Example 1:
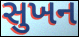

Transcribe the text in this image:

સુખન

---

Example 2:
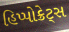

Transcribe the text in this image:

હિપ્પોક્રેટ્સ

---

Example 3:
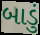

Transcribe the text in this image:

બાડું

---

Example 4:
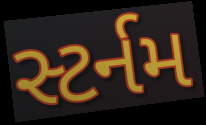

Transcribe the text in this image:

સ્ટર્નમ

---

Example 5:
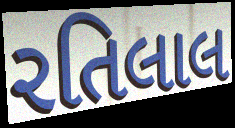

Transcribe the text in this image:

રતિલાલ